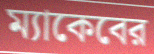
ম্যাকেবের